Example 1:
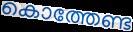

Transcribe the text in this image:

കൊത്തേണ്ട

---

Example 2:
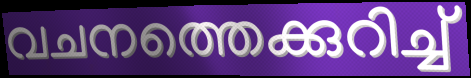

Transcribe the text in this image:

വചനത്തെക്കുറിച്ച്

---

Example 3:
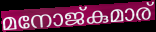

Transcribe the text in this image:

മനോജ്കുമാര്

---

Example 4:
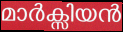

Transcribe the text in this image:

മാർക്സിയൻ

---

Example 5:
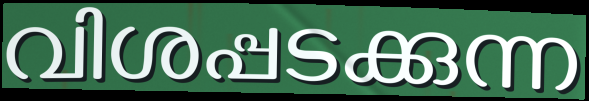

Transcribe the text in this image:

വിശപ്പടക്കുന്ന